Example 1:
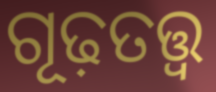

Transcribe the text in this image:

ଗୂଢ଼ତତ୍ତ୍ୱ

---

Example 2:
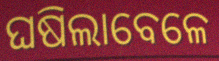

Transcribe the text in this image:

ଘଷିଲାବେଳେ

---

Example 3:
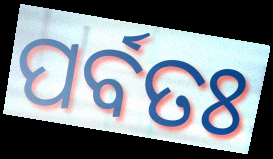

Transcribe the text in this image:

ପର୍ବତଃ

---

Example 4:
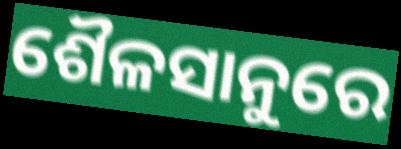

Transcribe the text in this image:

ଶୈଳସାନୁରେ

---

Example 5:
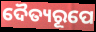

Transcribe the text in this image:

ଦୈତ୍ୟରୂପେ